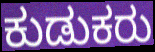
ಕುಡುಕರು